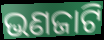
ଭଣଜାଟି